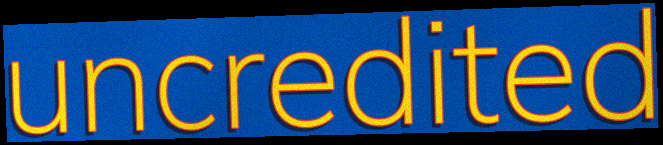
uncredited